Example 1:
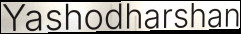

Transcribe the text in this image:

Yashodharshan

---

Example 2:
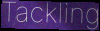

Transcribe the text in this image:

Tackling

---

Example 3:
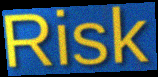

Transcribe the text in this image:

Risk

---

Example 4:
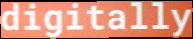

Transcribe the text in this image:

digitally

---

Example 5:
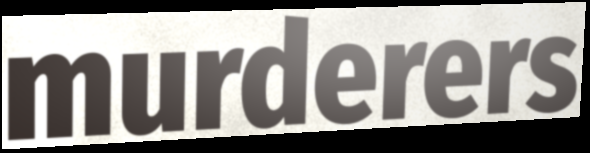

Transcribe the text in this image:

murderers